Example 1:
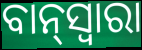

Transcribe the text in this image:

ବାନ୍‌ସ୍ୱାରା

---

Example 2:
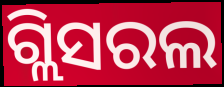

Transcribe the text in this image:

ଗ୍ଲିସରଲ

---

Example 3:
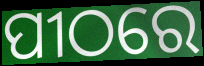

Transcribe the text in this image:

ପୀଠରେ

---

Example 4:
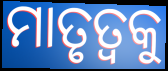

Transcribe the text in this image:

ମାତୃତ୍ବକୁ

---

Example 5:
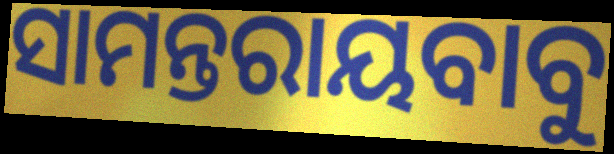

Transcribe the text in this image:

ସାମନ୍ତରାୟବାବୁ